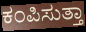
ಕಂಪಿಸುತ್ತಾ